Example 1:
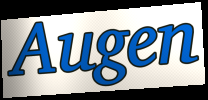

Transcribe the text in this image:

Augen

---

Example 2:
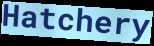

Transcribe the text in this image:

Hatchery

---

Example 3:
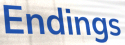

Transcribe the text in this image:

Endings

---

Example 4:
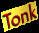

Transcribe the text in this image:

Tonk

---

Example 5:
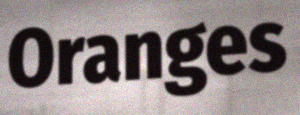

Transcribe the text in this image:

Oranges